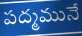
పద్మమునే